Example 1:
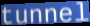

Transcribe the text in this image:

tunnel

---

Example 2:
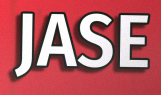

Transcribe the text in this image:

JASE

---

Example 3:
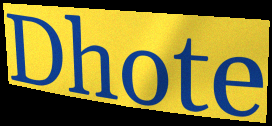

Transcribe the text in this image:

Dhote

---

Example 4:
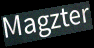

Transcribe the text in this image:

Magzter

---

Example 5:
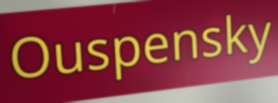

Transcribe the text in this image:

Ouspensky